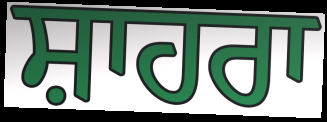
ਸ਼ਾਹਰਾ